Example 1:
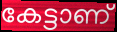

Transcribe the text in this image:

കേട്ടാണ്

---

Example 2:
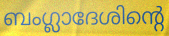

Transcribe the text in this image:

ബംഗ്ലാദേശിന്റെ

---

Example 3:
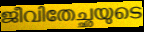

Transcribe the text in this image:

ജീവിതേച്ഛയുടെ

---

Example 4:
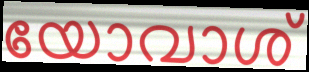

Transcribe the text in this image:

യോവാശ്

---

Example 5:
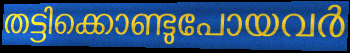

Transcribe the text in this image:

തട്ടിക്കൊണ്ടുപോയവർ